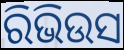
ରିଭିଉସ